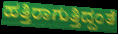
ಹತ್ತಿರಾಗುತ್ತಿದ್ದಂತೆ